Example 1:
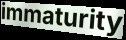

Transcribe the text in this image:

immaturity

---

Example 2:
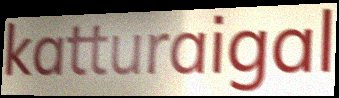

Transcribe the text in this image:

katturaigal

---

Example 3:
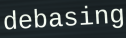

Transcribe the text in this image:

debasing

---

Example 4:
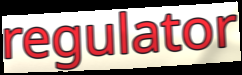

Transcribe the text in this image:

regulator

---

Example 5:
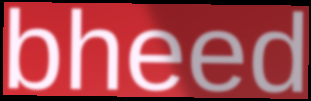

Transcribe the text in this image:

bheed